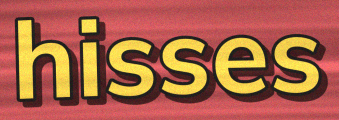
hisses